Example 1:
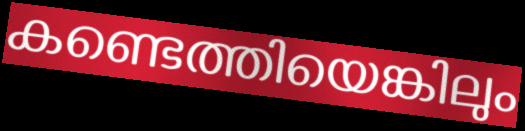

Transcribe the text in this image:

കണ്ടെത്തിയെങ്കിലും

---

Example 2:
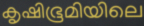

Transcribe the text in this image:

കൃഷിഭൂമിയിലെ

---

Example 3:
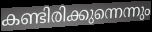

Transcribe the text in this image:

കണ്ടിരിക്കുന്നെന്നും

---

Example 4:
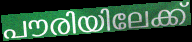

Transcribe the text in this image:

പൗരിയിലേക്ക്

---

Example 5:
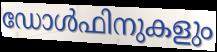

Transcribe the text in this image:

ഡോൾഫിനുകളും